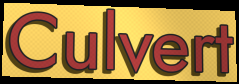
Culvert